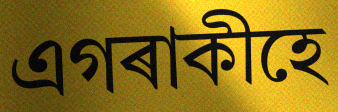
এগৰাকীহে